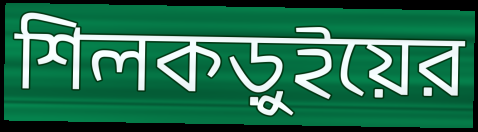
শিলকড়ুইয়ের